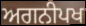
ਅਗਨੀਪਖ